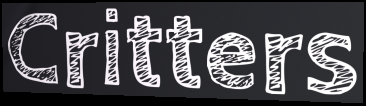
Critters